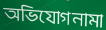
অভিযোগনামা